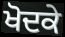
ਖੋਦਕੇ